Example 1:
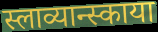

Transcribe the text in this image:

स्लाव्यान्स्काया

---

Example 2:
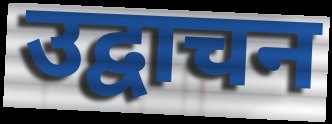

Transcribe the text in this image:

उद्वाचन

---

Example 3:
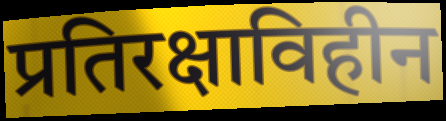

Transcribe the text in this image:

प्रतिरक्षाविहीन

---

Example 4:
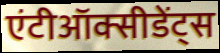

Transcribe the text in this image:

एंटीऑक्सीडेंट्स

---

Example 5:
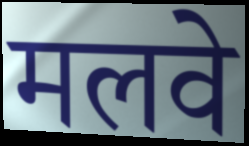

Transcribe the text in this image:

मलवे